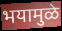
भयामुळे